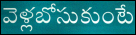
వెళ్లబోసుకుంటే